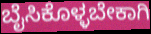
ಬೈಸಿಕೊಳ್ಳಬೇಕಾಗಿ